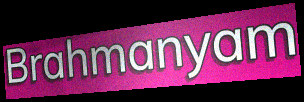
Brahmanyam